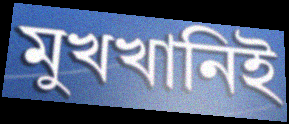
মুখখানিই